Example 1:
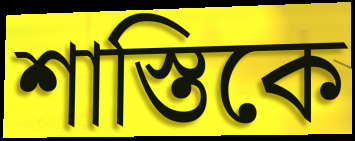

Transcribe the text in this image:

শাস্তিকে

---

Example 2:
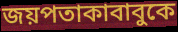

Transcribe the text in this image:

জয়পতাকাবাবুকে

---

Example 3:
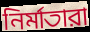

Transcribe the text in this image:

নির্মাতারা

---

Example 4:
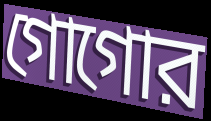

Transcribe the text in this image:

গোগোর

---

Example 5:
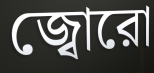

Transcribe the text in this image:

জ্বোরো